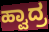
ಹ್ವಾದ್ರ